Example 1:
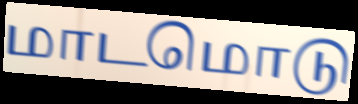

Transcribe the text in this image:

மாடமொடு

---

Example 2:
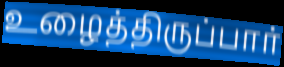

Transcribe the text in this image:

உழைத்திருப்பார்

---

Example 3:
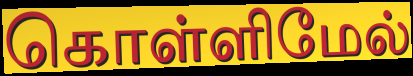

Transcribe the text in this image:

கொள்ளிமேல்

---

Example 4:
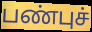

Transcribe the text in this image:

பண்புச்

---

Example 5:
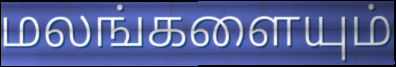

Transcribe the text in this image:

மலங்களையும்